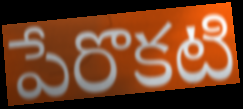
పేరొకటి